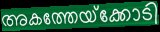
അകത്തേയ്‌ക്കോടി